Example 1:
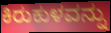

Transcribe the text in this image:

ಕಿರುಕುಳವನ್ನು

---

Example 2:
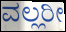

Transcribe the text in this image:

ವಲ್ಲರೀ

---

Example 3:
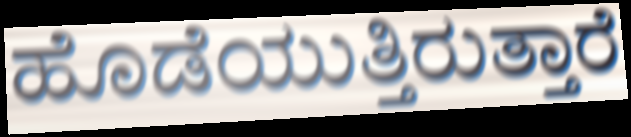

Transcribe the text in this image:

ಹೊಡೆಯುತ್ತಿರುತ್ತಾರೆ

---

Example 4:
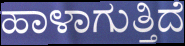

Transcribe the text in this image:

ಹಾಳಾಗುತ್ತಿದೆ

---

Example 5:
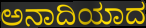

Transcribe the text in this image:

ಅನಾದಿಯಾದ